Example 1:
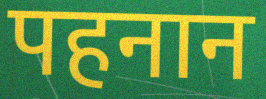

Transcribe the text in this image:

पहनान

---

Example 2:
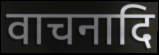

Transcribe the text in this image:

वाचनादि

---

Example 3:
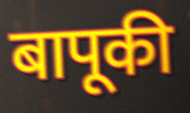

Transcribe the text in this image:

बापूकी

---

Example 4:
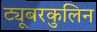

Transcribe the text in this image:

ट्यूबरकुलिन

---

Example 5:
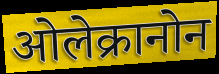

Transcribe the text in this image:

ओलेक्रानोन